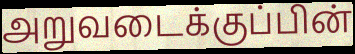
அறுவடைக்குப்பின்